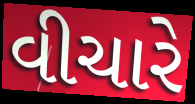
વીચારે